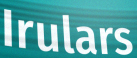
Irulars